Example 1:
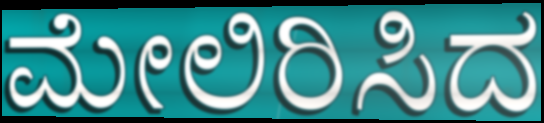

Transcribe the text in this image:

ಮೇಲಿರಿಸಿದ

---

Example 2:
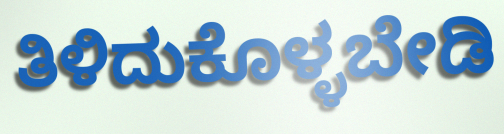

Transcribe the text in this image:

ತಿಳಿದುಕೊಳ್ಳಬೇಡಿ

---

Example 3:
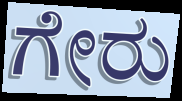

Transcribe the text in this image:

ಗೇರು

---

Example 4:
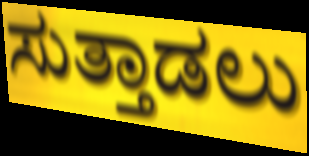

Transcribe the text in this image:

ಸುತ್ತಾಡಲು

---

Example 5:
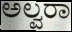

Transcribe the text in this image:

ಅಲ್ವರಾ